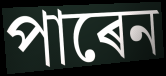
পাৰেন